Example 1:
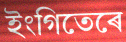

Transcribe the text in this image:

ইংগিতেৰে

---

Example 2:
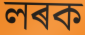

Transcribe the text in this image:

লৰক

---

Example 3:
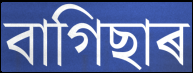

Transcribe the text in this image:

বাগিছাৰ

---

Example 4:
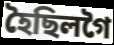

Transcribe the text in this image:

হৈছিলগৈ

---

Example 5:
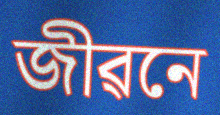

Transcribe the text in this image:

জীৱনে